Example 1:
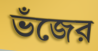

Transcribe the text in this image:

ভঁজের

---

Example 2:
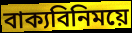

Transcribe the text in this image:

বাক্যবিনিময়ে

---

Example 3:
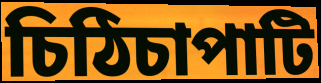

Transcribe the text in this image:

চিঠিচাপাটি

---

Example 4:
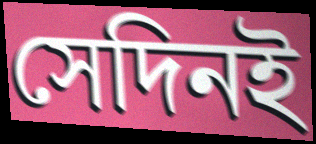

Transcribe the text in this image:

সেদিনই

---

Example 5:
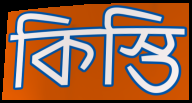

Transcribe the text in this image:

কিস্তি